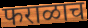
फराळाच